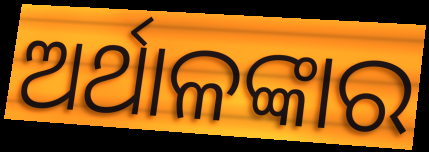
ଅର୍ଥାଳଙ୍କାର